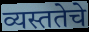
व्यस्ततेचे